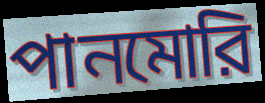
পানমোরি